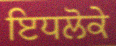
ਇਧਲੋਕੇ